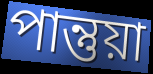
পান্তুয়া